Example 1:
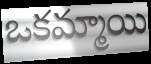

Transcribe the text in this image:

ఒకమ్మాయి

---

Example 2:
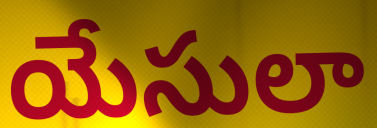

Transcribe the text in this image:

యేసులా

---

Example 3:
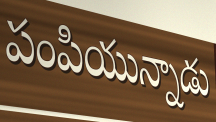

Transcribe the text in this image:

పంపియున్నాడు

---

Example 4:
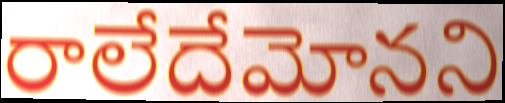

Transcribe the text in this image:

రాలేదేమోనని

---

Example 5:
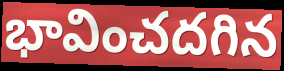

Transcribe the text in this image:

భావించదగిన